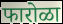
फारोळा